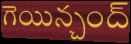
గెయిన్చంద్